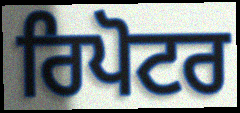
ਰਿਪੋਟਰ